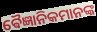
ଵୈଜ୍ଞାନିକମାନଙ୍କ